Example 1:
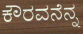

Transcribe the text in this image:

ಕೌರವನೆನ್ನ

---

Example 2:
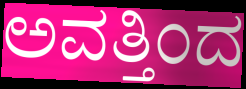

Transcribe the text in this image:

ಅವತ್ತಿಂದ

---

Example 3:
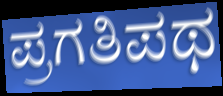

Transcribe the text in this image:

ಪ್ರಗತಿಪಥ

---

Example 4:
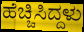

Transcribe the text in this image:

ಹೆಚ್ಚಿಸಿದ್ದಳು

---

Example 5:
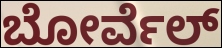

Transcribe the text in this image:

ಬೋರ್ವೆಲ್